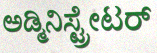
ಅಡ್ಮಿನಿಸ್ಟ್ರೇಟರ್